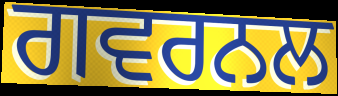
ਗਵਰਨਲ